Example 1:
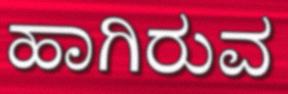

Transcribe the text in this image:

ಹಾಗಿರುವ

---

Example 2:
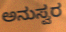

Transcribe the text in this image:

ಅನುಸ್ವರ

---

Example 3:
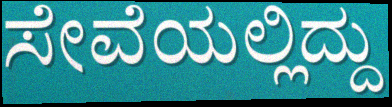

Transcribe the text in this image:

ಸೇವೆಯಲ್ಲಿದ್ದು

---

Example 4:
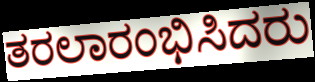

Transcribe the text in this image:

ತರಲಾರಂಭಿಸಿದರು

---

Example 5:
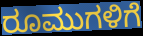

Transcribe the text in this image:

ರೂಮುಗಳಿಗೆ